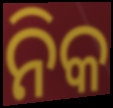
ନିକ